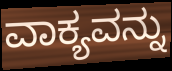
ವಾಕ್ಯವನ್ನು